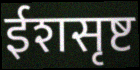
ईशसृष्ट